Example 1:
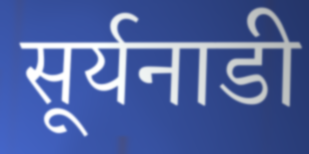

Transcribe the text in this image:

सूर्यनाडी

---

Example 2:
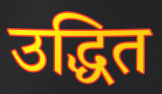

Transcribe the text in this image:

उद्धित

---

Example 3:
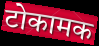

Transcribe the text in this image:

टोकामक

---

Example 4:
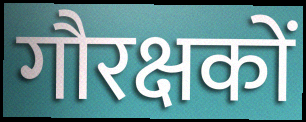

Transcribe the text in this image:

गौरक्षकों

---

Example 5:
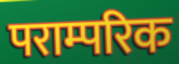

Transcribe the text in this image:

पराम्परिक